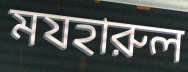
মযহারুল